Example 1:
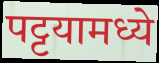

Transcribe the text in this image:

पट्टयामध्ये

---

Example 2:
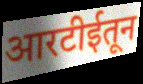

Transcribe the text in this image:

आरटीईतून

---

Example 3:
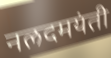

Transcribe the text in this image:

नलदमयंती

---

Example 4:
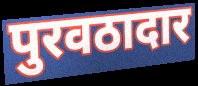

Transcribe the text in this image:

पुरवठादार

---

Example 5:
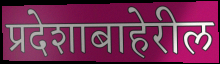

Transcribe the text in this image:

प्रदेशाबाहेरील